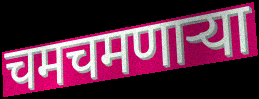
चमचमणार्‍या